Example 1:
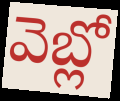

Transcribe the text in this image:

వెబ్లో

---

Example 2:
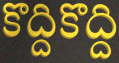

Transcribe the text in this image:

కొద్దికొద్ది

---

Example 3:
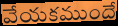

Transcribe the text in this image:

వేయకముందే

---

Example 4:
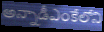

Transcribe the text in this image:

అన్నాడీఎంకేలోని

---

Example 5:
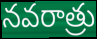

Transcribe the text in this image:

నవరాత్రు